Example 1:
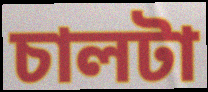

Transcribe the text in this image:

চালটা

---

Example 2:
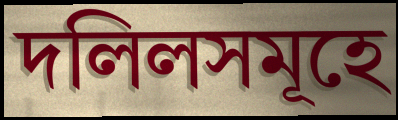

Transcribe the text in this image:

দলিলসমূহে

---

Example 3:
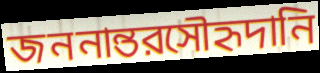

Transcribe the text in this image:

জননান্তরসৌহৃদানি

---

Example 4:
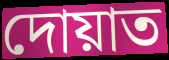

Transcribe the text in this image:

দোয়াত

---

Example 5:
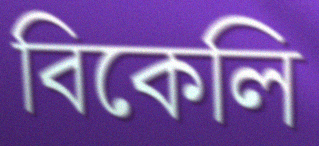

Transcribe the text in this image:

বিকেলি